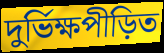
দুর্ভিক্ষপীড়িত